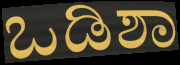
ಒಡಿಶಾ